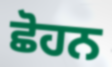
ਛੋਹਨ